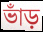
ভাঁড়